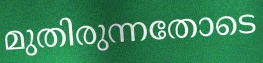
മുതിരുന്നതോടെ